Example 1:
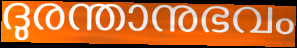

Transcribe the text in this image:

ദുരന്താനുഭവം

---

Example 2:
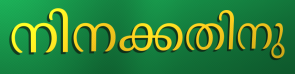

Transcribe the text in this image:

നിനക്കതിനു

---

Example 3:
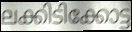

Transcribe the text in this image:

ലക്കിടിക്കോട്ട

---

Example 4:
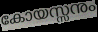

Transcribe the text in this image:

കോയസ്സനും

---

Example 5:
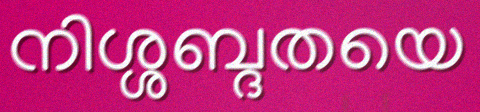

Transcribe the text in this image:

നിശ്ശബ്ദതയെ